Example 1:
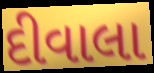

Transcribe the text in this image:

દીવાલા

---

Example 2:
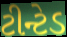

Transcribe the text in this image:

ટીન્ટેડ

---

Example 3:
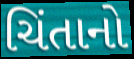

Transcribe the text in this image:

ચિંતાનો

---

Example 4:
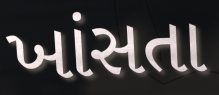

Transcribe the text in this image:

ખાંસતા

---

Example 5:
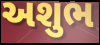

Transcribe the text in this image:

અશુભ